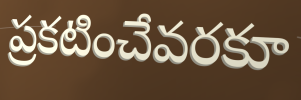
ప్రకటించేవరకూ